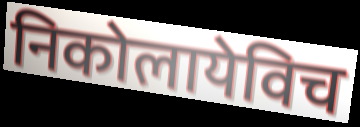
निकोलायेविच